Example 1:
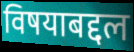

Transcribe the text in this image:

विषयाबद्दल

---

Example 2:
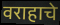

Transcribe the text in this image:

वराहाचे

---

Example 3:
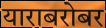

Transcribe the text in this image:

याराबरोबर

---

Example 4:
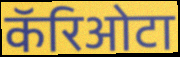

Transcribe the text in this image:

कॅरिओटा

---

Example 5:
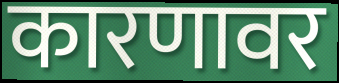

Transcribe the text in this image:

कारणावर